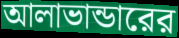
আলাভান্ডারের